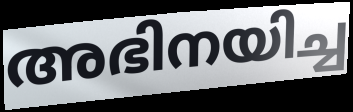
അഭിനയിച്ച